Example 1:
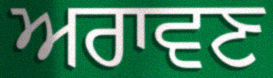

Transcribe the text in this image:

ਅਰਾਵਣ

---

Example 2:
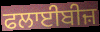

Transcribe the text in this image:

ਫਲਾਈਬੀਜ਼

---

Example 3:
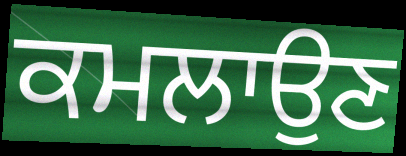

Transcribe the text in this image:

ਕਮਲਾਉਣ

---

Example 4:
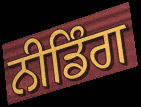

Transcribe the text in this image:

ਨੀਡਿੰਗ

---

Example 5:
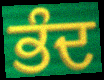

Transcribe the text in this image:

ਭੰਦ